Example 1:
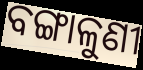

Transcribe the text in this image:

ବଙ୍ଗାଳୁଣୀ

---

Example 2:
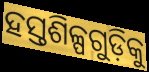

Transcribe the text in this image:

ହସ୍ତଶିଳ୍ପଗୁଡ଼ିକୁ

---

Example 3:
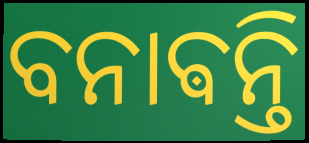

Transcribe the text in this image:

ବନାଵନ୍ତି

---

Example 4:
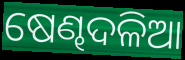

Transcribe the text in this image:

ଷେଣ୍ଢଦଳିଆ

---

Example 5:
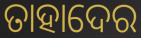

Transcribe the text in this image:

ତାହାଦେର